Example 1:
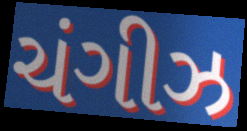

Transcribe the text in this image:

ચંગીઝ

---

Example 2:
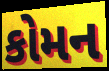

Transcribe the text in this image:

કોમન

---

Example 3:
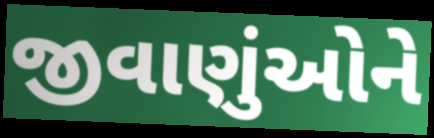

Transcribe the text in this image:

જીવાણુંઓને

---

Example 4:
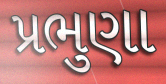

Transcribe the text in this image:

પ્રભુણા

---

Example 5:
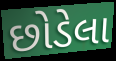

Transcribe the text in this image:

છોડેલા